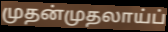
முதன்முதலாய்ப்